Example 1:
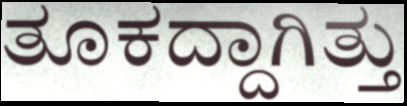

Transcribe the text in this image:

ತೂಕದ್ದಾಗಿತ್ತು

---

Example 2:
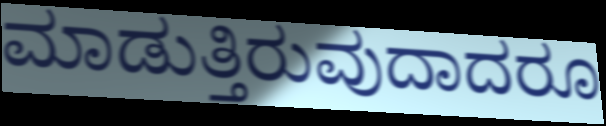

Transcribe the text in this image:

ಮಾಡುತ್ತಿರುವುದಾದರೂ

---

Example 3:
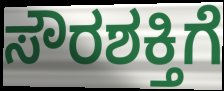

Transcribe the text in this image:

ಸೌರಶಕ್ತಿಗೆ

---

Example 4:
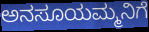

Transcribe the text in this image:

ಅನಸೂಯಮ್ಮನಿಗೆ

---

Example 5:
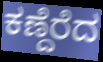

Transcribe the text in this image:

ಕಣ್ದೆರೆದ